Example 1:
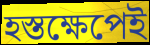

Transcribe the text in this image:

হস্তক্ষেপেই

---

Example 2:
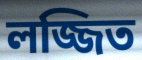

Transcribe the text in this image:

লজ্জিত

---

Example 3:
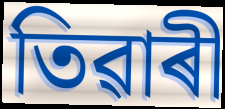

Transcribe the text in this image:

তিৱাৰী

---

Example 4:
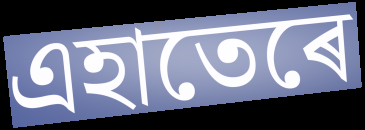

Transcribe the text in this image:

এহাতেৰে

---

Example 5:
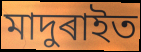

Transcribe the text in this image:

মাদুৰাইত